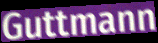
Guttmann